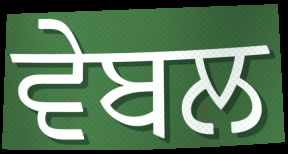
ਵੇਬਲ